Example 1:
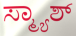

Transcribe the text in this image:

ಸ್ಮ್ಯಾಶ್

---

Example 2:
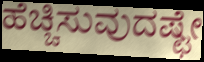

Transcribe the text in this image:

ಹೆಚ್ಚಿಸುವುದಷ್ಟೇ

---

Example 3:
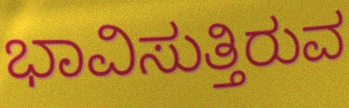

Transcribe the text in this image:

ಭಾವಿಸುತ್ತಿರುವ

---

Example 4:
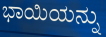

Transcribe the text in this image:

ಭಾಯಿಯನ್ನು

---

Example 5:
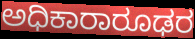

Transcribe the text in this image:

ಅಧಿಕಾರಾರೂಢರ